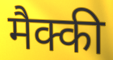
मैक्की